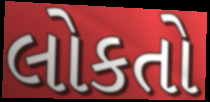
લોકતો